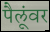
पैलूंवर